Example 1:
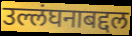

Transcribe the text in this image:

उल्लंघनाबद्दल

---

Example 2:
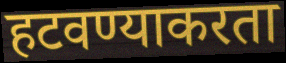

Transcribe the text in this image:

हटवण्याकरता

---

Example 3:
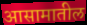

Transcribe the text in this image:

आसामातील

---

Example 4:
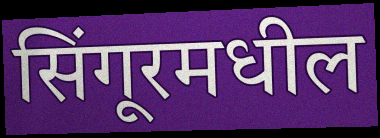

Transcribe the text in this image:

सिंगूरमधील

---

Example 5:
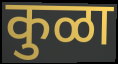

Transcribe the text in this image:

कुळा